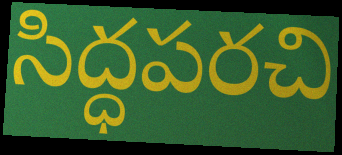
సిద్ధపరచి